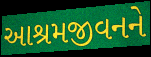
આશ્રમજીવનને